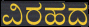
ವಿರಹದ